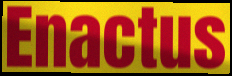
Enactus